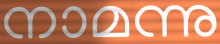
നാമന്നു